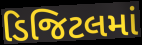
ડિજિટલમાં